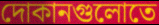
দোকানগুলোতে